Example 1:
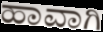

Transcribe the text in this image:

ಹಾವಾಗಿ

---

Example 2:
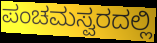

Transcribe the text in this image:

ಪಂಚಮಸ್ವರದಲ್ಲಿ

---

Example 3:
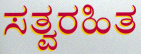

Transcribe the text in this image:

ಸತ್ವರಹಿತ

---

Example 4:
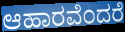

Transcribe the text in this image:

ಆಹಾರವೆಂದರೆ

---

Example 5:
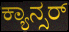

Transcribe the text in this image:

ಕ್ಯಾನ್ಸರ್